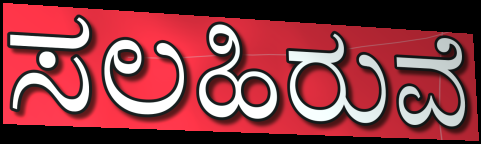
ಸಲಹಿರುವೆ